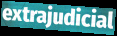
extrajudicial